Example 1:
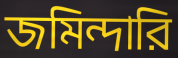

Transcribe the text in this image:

জমিন্দারি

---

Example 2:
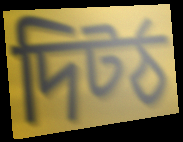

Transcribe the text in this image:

দিট্ঠ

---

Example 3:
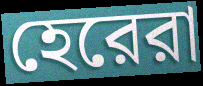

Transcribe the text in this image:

হেরেরা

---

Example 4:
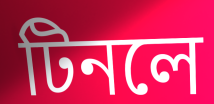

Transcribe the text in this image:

টিনলে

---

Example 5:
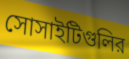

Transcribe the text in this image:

সোসাইটিগুলির